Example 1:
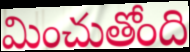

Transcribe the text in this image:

మించుతోంది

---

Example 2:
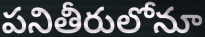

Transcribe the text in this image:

పనితీరులోనూ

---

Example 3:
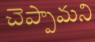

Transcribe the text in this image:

చెప్పామని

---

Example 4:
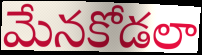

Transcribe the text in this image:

మేనకోడలా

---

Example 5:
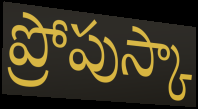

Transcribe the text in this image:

ప్రోపుస్కా